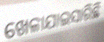
ଖେଳାଯାଇସାରିଛି